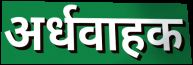
अर्धवाहक